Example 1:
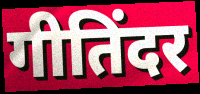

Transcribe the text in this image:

गीतिंदर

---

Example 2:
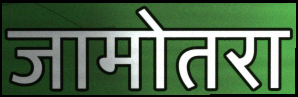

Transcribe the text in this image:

जामोतरा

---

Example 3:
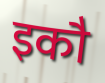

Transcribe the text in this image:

इकौ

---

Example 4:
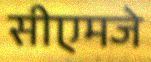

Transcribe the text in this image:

सीएमजे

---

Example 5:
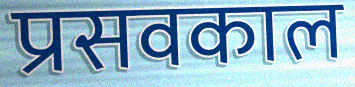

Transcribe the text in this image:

प्रसवकाल